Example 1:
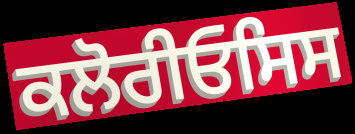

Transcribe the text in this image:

ਕਲੋਰੀਓਸਿਸ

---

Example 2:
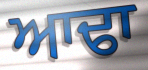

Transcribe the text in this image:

ਆਢਾ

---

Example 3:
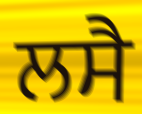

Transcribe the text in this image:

ਲਸੈ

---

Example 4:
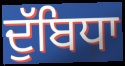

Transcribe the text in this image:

ਦੁੱਬਿਧਾ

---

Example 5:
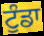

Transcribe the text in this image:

ਟੁੰਡਾ